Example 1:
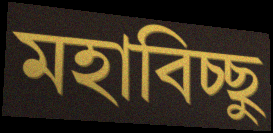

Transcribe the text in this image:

মহাবিচ্ছু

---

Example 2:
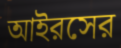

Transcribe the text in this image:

আইরসের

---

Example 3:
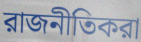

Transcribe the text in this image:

রাজনীতিকরা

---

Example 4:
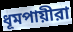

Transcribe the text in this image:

ধূমপায়ীরা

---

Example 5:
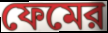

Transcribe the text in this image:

ফেমের